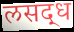
लसद्ध